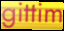
gittim